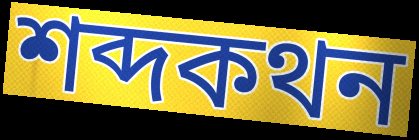
শব্দকথন